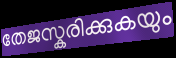
തേജസ്കരിക്കുകയും